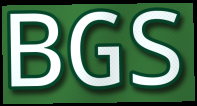
BGS